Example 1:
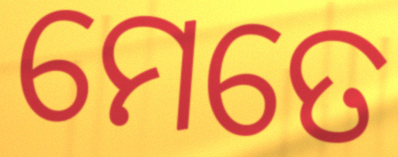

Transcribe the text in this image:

ମେତେ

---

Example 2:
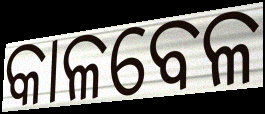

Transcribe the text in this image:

କାଳବେଳ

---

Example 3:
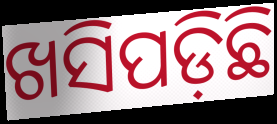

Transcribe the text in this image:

ଖସିପଡ଼ିଛି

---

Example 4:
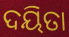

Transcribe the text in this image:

ଦୟିତା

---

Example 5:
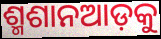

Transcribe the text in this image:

ଶ୍ମଶାନଆଡ଼କୁ